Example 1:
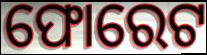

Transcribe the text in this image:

ଫୋରେଟ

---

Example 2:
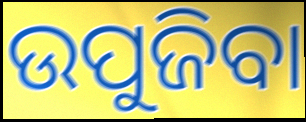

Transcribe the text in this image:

ଉପୁଜିବା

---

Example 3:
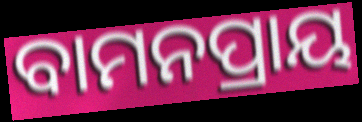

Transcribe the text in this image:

ବାମନପ୍ରାୟ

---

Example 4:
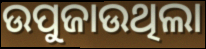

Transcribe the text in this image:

ଉପୁଜାଉଥିଲା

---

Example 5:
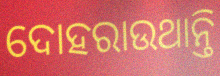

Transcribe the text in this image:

ଦୋହରାଉଥାନ୍ତି